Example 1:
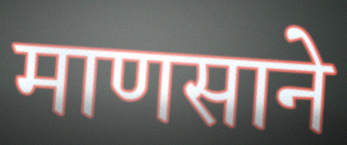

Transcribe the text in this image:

माणसाने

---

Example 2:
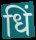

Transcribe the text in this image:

धिं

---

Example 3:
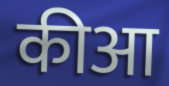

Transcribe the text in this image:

कीआ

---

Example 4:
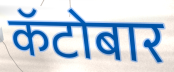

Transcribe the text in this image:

कॅटोबार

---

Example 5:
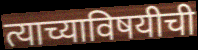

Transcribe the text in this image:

त्याच्याविषयीची